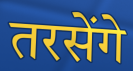
तरसेंगे